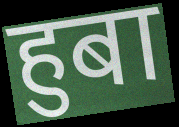
हुबा